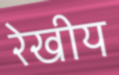
रेखीय